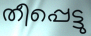
തീപ്പെട്ടു